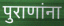
पुराणांना